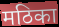
मठिका